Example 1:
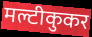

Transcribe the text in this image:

मल्टीकुकर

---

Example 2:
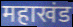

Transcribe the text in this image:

महाखंड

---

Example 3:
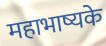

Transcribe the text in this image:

महाभाष्यके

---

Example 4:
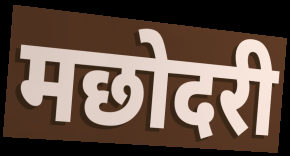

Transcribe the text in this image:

मछोदरी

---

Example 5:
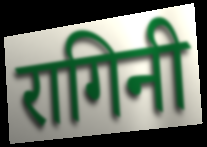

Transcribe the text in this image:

रागिनी